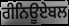
ਰੀਨਿਊਏਬਲ